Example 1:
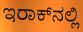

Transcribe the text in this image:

ಇರಾಕ್‍ನಲ್ಲಿ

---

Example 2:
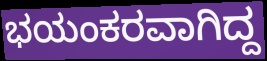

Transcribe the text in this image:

ಭಯಂಕರವಾಗಿದ್ದ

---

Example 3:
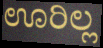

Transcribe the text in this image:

ಊರಿಲ್ಲ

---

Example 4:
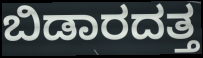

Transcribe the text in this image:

ಬಿಡಾರದತ್ತ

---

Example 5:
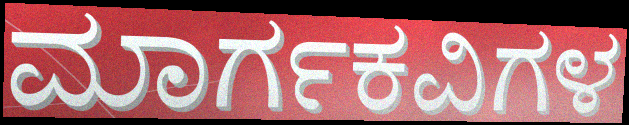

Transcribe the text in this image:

ಮಾರ್ಗಕವಿಗಳ